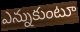
ఎన్నుకుంటూ